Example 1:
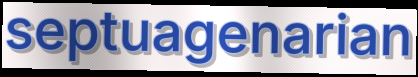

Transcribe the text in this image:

septuagenarian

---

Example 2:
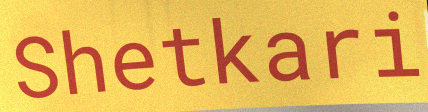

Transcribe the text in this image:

Shetkari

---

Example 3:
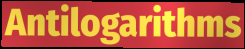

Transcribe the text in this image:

Antilogarithms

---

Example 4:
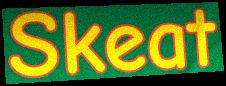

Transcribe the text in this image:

Skeat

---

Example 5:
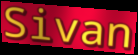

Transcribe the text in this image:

Sivan